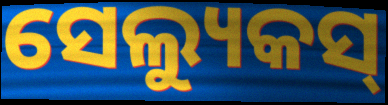
ସେଲ୍ୟୁକସ୍